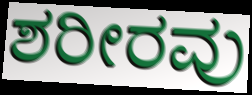
ಶರೀರವು